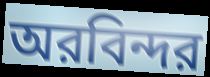
অরবিন্দর